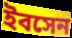
ইবসেন